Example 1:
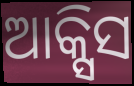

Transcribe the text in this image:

ଆକ୍ସିସ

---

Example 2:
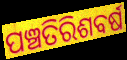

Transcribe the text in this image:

ପଞ୍ଚତିରିଶବର୍ଷ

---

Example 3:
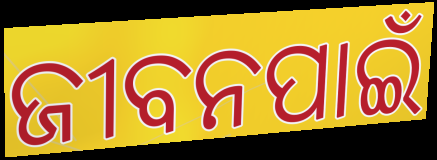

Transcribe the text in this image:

ଜୀବନପାଇଁ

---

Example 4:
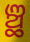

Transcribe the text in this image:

ଞ୍ଛ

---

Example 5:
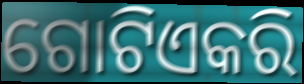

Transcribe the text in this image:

ଗୋଟିଏକରି